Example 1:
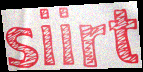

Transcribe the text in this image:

siirt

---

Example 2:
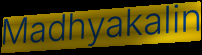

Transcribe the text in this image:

Madhyakalin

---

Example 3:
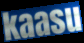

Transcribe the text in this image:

kaasu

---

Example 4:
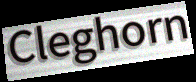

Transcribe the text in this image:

Cleghorn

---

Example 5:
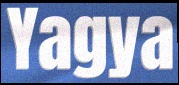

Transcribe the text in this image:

Yagya